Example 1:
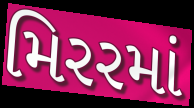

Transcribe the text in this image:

મિરરમાં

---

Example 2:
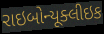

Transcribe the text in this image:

રાઇબોન્યૂક્લીઇક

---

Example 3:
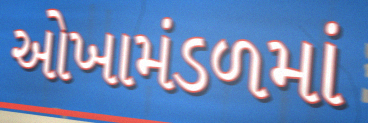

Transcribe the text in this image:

ઓખામંડળમાં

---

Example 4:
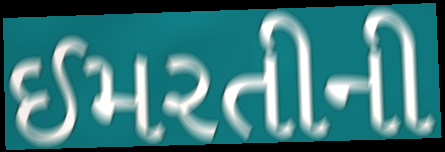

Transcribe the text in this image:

ઈમરતીની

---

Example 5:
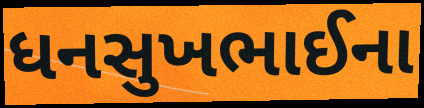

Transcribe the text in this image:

ધનસુખભાઈના